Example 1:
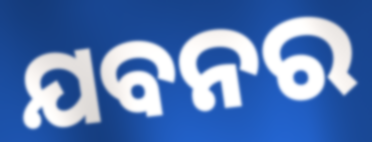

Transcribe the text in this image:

ଯବନର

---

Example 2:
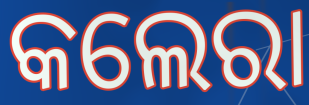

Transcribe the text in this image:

କଲେରା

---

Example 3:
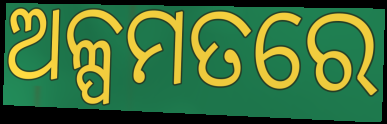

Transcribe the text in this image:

ଅଳ୍ପମତରେ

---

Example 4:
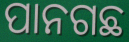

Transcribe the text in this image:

ପାନଗଛ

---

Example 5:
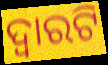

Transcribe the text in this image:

ଦ୍ୱାରଟି